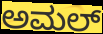
ಅಮಲ್